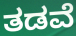
ತಡವೆ